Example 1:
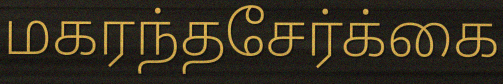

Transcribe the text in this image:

மகரந்தசேர்க்கை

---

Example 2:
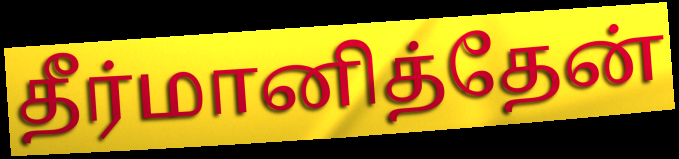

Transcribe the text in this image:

தீர்மானித்தேன்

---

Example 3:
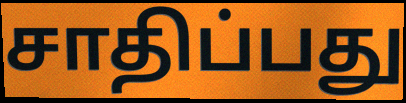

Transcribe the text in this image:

சாதிப்பது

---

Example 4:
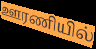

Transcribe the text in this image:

ஊரணியில்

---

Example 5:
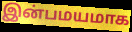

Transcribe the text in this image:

இன்பமயமாக